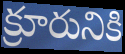
క్రూరునికి